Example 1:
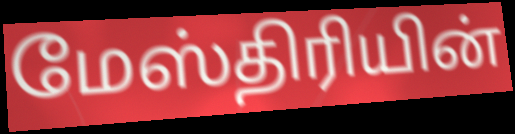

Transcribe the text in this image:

மேஸ்திரியின்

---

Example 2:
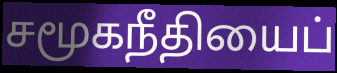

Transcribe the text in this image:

சமூகநீதியைப்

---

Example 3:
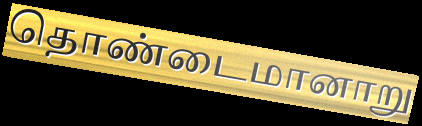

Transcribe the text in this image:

தொண்டைமானாறு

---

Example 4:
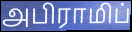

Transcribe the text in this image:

அபிராமிப்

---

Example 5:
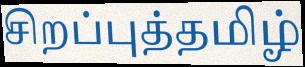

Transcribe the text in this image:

சிறப்புத்தமிழ்